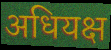
अधियक्ष